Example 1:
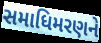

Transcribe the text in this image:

સમાધિમરણને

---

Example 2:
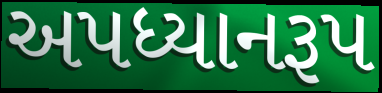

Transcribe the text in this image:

અપધ્યાનરૂપ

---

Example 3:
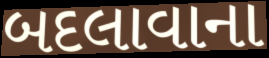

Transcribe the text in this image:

બદલાવાના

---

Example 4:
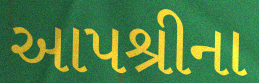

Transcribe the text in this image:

આપશ્રીના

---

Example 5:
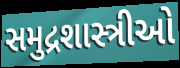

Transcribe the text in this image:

સમુદ્રશાસ્ત્રીઓ